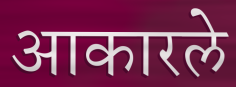
आकारले